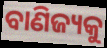
ବାଣିଜ୍ୟକୁ